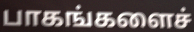
பாகங்களைச்